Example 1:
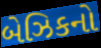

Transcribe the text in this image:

બેઝિકનો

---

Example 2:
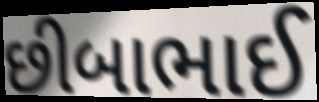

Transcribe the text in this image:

છીબાભાઈ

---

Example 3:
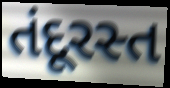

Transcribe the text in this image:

તંદૂરસ્ત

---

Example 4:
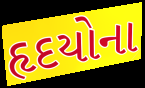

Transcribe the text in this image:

હૃદયોના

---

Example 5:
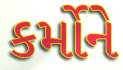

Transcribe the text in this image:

કર્મોને